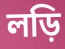
লড়ি